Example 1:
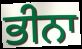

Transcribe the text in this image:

ਭੀਨਾ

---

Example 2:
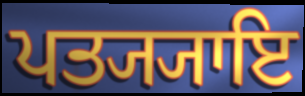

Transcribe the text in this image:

ਪਤ੍ਯ੍ਯਾਇ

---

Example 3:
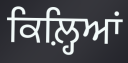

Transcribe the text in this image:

ਕਿਲ਼੍ਹਿਆਂ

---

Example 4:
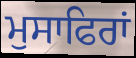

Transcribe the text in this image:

ਮੁਸਾਫਿਰਾਂ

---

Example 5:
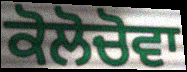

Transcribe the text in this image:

ਕੋਲੋਚੋਵਾ